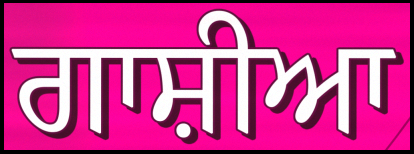
ਗਾਸ਼ੀਆ